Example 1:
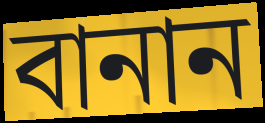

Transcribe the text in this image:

বানান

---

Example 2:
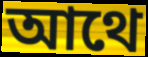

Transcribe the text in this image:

আথে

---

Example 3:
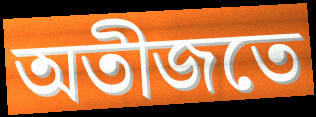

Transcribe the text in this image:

অতীজতে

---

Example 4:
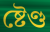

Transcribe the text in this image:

ষ্টেণ্ড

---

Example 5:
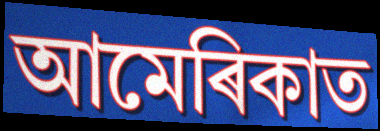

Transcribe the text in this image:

আমেৰিকাত